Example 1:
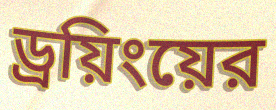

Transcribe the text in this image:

ড্রয়িংয়ের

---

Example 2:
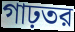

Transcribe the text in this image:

গাঢ়তর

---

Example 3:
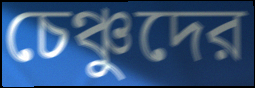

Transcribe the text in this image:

চেঞ্চুদের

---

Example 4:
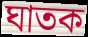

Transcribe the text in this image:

ঘাতক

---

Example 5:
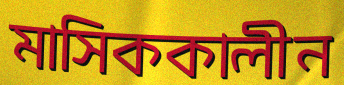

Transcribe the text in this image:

মাসিককালীন